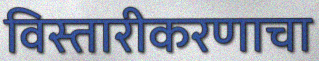
विस्तारीकरणाचा